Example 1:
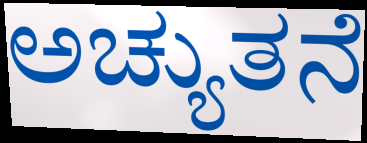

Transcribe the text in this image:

ಅಚ್ಯುತನೆ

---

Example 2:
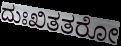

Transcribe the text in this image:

ದುಃಖಿತತರೋ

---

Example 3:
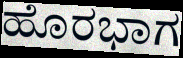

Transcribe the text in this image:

ಹೊರಭಾಗ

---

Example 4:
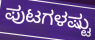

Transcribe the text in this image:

ಪುಟಗಳಷ್ಟು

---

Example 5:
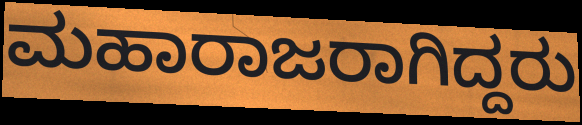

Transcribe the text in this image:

ಮಹಾರಾಜರಾಗಿದ್ದರು